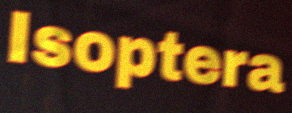
Isoptera